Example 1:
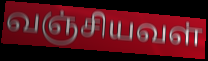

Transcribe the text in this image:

வஞ்சியவள்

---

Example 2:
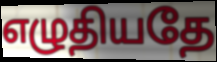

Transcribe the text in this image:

எழுதியதே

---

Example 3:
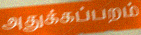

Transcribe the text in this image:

அதுக்கப்பறம்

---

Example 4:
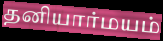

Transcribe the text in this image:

தனியார்மயம்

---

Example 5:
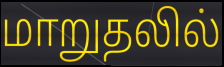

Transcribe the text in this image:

மாறுதலில்